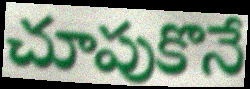
చూపుకొనే